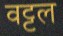
वट्टल